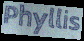
Phyllis